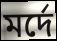
মর্দে